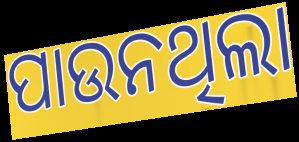
ପାଉନଥିଲା